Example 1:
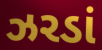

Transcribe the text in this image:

ઝરડાં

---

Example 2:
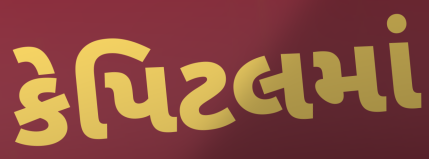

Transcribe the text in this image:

કેપિટલમાં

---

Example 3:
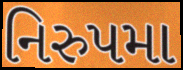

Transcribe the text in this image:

નિરુપમા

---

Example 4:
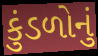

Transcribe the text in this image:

કુંડળોનું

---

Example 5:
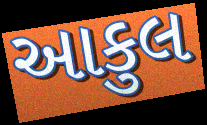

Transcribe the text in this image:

આકુલ